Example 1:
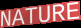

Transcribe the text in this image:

NATURE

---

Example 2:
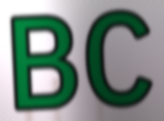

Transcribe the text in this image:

BC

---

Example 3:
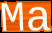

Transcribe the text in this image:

Ma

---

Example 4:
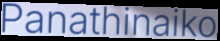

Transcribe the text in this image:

Panathinaiko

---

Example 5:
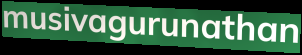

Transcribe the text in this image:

musivagurunathan